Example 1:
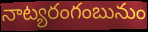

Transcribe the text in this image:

నాట్యరంగంబునుం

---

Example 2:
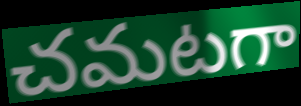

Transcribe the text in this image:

చమటగా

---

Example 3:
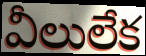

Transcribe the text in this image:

వీలులేక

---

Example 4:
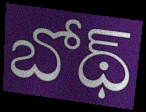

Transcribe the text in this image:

బోథ్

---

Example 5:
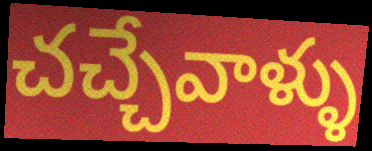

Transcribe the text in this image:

చచ్చేవాళ్ళు